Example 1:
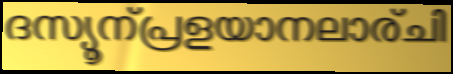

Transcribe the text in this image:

ദസ്യൂന്പ്രളയാനലാര്ചി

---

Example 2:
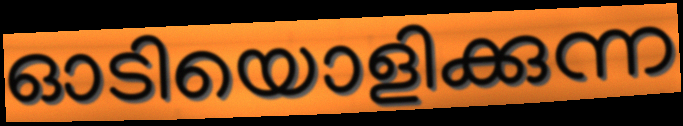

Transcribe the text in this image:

ഓടിയൊളിക്കുന്ന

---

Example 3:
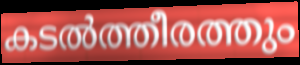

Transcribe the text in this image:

കടൽത്തീരത്തും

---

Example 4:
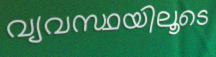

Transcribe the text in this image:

വ്യവസ്ഥയിലൂടെ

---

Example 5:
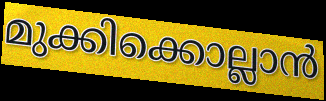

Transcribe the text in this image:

മുക്കിക്കൊല്ലാൻ